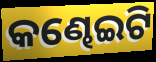
କଣ୍ଢେଇଟି